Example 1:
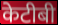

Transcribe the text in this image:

केटीबी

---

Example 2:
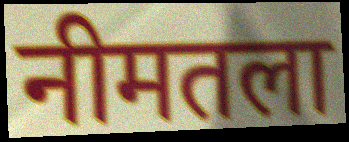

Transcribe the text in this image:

नीमतला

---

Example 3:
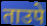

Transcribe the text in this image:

ताउपे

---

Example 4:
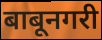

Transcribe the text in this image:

बाबूनगरी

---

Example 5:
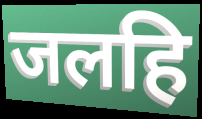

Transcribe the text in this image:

जलहि